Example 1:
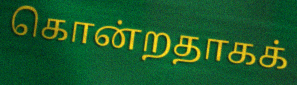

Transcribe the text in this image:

கொன்றதாகக்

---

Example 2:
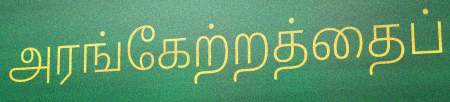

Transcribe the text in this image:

அரங்கேற்றத்தைப்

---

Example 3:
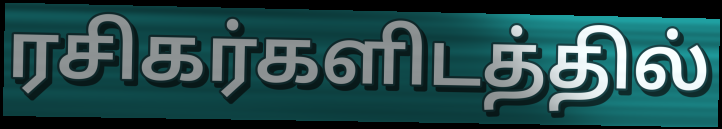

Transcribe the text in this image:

ரசிகர்களிடத்தில்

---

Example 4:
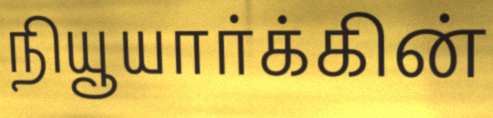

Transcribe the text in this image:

நியூயார்க்கின்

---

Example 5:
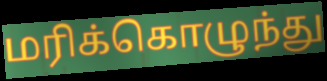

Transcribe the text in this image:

மரிக்கொழுந்து